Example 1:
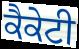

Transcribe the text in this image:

ਕੈਕੇਟੀ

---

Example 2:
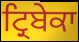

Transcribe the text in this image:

ਟ੍ਰਿਬੇਕਾ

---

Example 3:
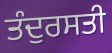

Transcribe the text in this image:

ਤੰਦੁਰਸਤੀ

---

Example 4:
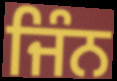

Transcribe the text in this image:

ਜਿੰਨ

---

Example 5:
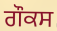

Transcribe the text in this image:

ਗੌਕਸ